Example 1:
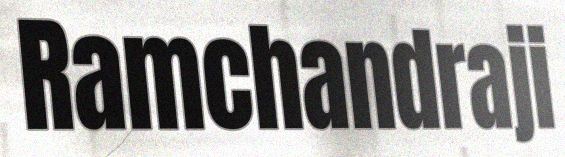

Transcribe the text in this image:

Ramchandraji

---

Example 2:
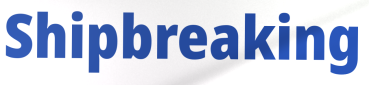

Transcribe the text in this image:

Shipbreaking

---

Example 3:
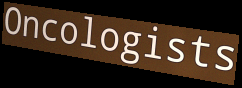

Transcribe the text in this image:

Oncologists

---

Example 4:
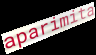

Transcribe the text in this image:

aparimita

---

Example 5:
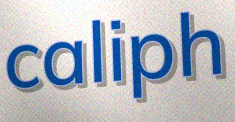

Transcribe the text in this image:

caliph